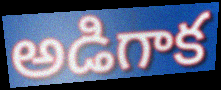
అడిగాక